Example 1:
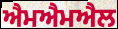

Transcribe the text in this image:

ਐਮਐਮਐਲ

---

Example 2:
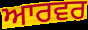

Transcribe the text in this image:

ਆਰਵਰ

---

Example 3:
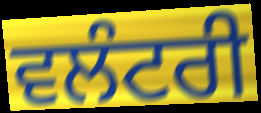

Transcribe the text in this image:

ਵਲੰਟਰੀ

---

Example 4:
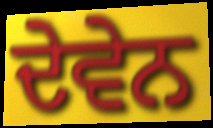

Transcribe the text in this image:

ਦੇਵੇਨ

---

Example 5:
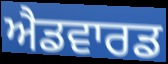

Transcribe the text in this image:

ਐਡਵਾਰਡ